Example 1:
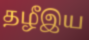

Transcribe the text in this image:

தழீஇய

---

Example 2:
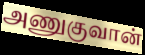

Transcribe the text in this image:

அணுகுவான்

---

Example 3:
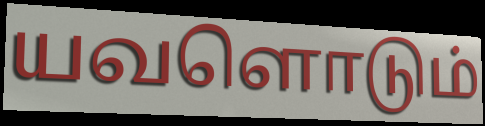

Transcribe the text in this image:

யவளொடும்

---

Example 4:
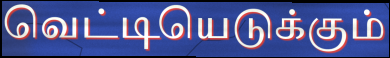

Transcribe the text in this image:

வெட்டியெடுக்கும்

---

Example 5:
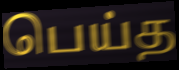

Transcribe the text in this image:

பெய்த